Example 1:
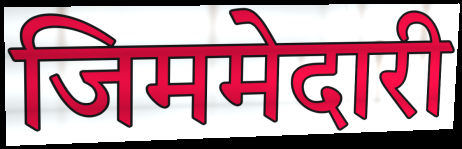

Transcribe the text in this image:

जिममेदारी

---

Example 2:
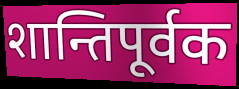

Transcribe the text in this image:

शान्तिपूर्वक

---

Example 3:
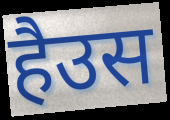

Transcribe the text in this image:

हैउस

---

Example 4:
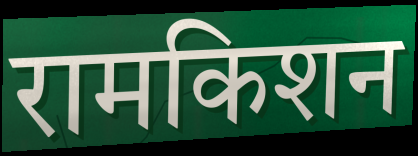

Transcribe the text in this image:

रामकिशन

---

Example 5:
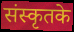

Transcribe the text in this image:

संस्कृतके